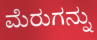
ಮೆರುಗನ್ನು